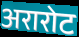
अरारोट